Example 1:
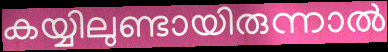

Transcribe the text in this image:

കയ്യിലുണ്ടായിരുന്നാൽ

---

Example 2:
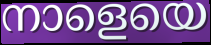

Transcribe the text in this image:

നാളെയെ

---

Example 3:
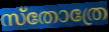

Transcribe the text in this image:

സ്തോത്രേ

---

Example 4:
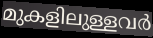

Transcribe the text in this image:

മുകളിലുള്ളവർ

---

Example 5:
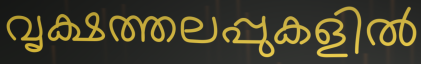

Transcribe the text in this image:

വൃക്ഷത്തലപ്പുകളിൽ